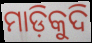
ମାଡ଼ିକୁଦି